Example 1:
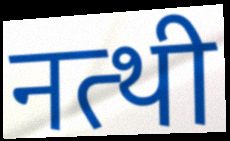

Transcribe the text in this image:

नत्‍थी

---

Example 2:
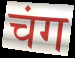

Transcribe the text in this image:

चंग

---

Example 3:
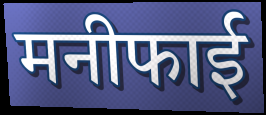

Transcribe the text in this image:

मनीफाई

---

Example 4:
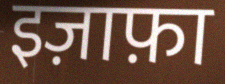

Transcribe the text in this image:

इज़ाफ़ा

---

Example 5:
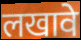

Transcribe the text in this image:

लखावे